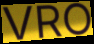
VRO